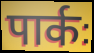
पार्कः